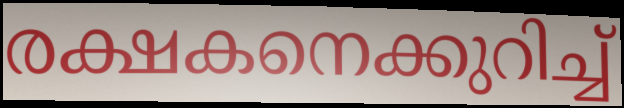
രക്ഷകനെക്കുറിച്ച്